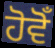
ਹੋਵੋਁ